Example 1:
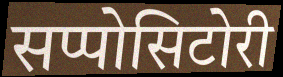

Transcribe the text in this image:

सप्पोसिटोरी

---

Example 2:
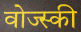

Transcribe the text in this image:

वोज्स्की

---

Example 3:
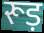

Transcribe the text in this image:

रूड़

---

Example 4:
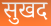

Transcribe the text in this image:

सुखद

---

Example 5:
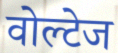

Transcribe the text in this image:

वोल्टेज